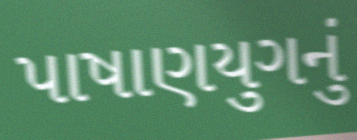
પાષાણયુગનું